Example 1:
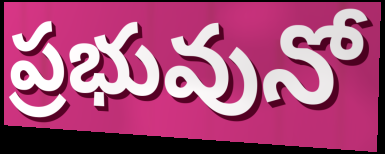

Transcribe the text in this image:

ప్రభువునో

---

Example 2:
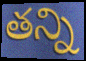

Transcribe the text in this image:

తన్ని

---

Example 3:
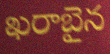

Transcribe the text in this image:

ఖరాబైన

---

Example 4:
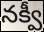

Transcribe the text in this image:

నక్వీ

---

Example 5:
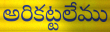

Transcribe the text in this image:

అరికట్టలేము